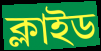
ক্লাইড